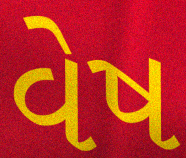
વેષ